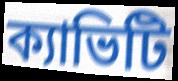
ক্যাভিটি